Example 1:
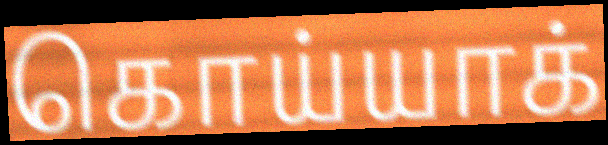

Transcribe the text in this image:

கொய்யாக்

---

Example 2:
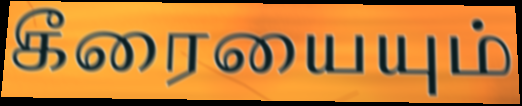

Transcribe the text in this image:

கீரையையும்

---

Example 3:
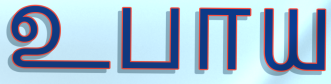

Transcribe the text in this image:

உபாய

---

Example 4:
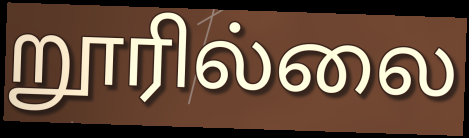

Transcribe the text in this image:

றூரில்லை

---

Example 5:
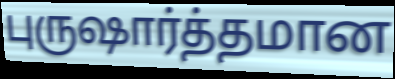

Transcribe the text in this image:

புருஷார்த்தமான